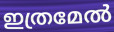
ഇത്രമേൽ